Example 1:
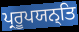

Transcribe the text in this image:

ਪ੍ਰਰੂਪਯਨ੍ਤਿ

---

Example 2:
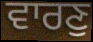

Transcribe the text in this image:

ਵਾਰਣੁ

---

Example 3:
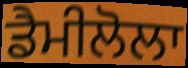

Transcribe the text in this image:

ਡੈਮੀਲੋਲਾ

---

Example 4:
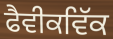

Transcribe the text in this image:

ਫੈਵੀਕਵਿੱਕ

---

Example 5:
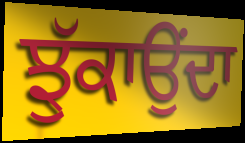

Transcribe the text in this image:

ਝੁੱਕਾਉਂਦਾ